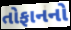
તોફાનનો